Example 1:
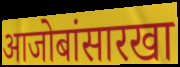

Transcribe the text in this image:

आजोबांसारखा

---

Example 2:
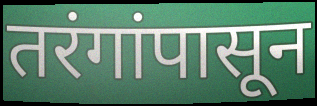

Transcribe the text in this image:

तरंगांपासून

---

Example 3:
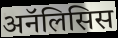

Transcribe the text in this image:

अनॅलिसिस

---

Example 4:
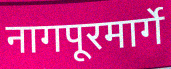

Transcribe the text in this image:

नागपूरमार्गे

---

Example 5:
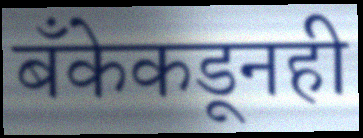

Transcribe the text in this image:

बँकेकडूनही